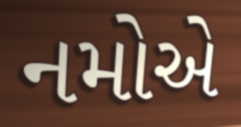
નમોએ